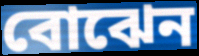
বোঝেন